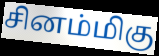
சினம்மிகு